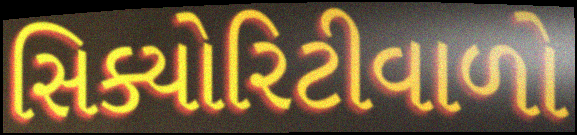
સિક્યોરિટીવાળો